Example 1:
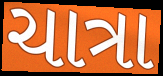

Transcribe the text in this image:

ચાત્રા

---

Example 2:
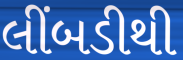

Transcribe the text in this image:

લીંબડીથી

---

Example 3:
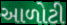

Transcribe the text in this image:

આળોટી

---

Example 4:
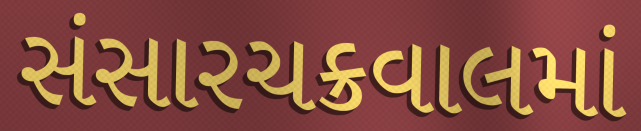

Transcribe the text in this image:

સંસારચક્રવાલમાં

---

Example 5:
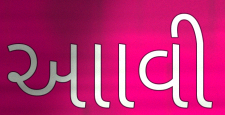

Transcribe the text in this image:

આાવી